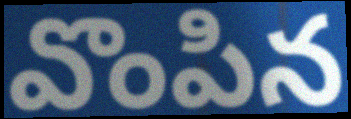
వొంపిన